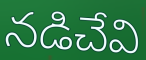
నడిచేవి